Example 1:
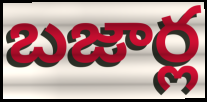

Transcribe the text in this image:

బజార్ల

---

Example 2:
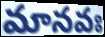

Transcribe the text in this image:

మానవః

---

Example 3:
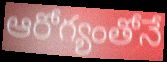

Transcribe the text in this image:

ఆరోగ్యంతోనే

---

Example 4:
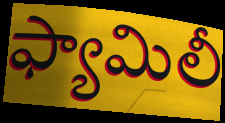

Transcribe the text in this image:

ఫ్యామిలీ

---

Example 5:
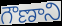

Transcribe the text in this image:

గౌణాని